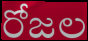
రోజల